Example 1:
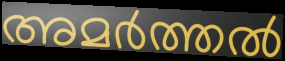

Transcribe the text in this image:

അമർത്തൽ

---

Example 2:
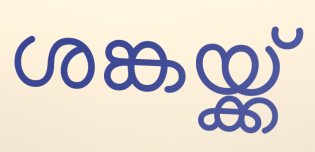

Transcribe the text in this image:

ശങ്കയ്ക്ക്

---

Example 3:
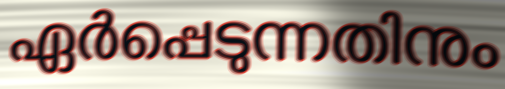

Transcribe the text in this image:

ഏർപ്പെടുന്നതിനും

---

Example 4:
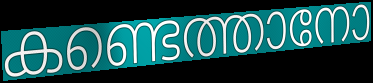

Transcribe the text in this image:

കണ്ടെത്താനോ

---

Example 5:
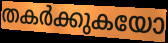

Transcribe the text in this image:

തകർക്കുകയോ